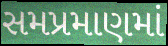
સમપ્રમાણમાં